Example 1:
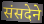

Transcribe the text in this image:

संसदेने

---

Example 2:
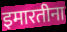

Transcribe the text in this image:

इमारतीना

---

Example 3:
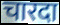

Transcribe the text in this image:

चारदा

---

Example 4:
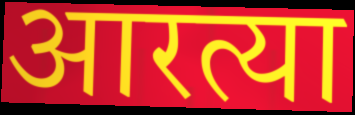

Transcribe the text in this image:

आरत्या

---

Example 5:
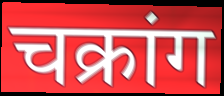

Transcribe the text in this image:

चक्रांग